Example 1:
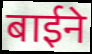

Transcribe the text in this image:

बाईने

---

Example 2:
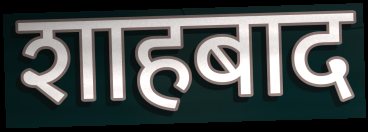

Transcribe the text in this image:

शाहबाद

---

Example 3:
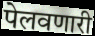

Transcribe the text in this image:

पेलवणारी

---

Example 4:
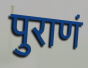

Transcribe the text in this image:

पुराणं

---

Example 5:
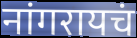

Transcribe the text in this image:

नांगरायचं